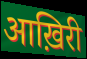
आख़िरी